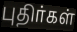
புதிர்கள்